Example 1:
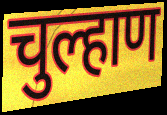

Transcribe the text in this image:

चुल्हाण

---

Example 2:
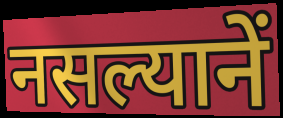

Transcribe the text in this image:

नसल्यानें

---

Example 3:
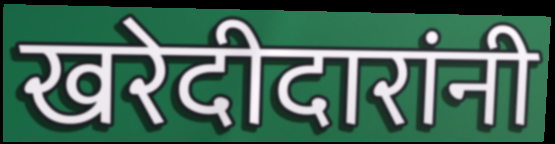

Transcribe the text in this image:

खरेदीदारांनी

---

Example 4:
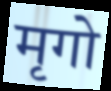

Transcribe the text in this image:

मृगो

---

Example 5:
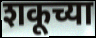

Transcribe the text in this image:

शकूच्या